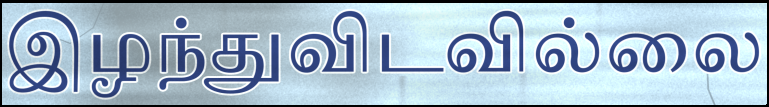
இழந்துவிடவில்லை